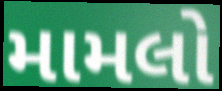
મામલો